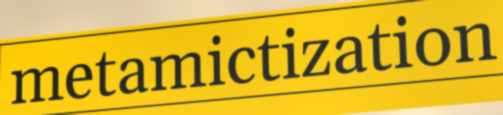
metamictization